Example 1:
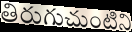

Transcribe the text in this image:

తిరుగుచుంటిని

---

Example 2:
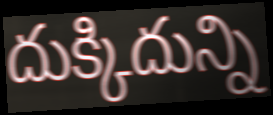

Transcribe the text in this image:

దుక్కిదున్ని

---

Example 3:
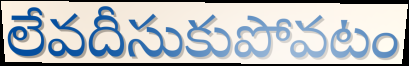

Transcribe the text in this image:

లేవదీసుకుపోవటం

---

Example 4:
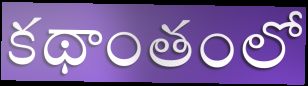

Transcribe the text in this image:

కథాంతంలో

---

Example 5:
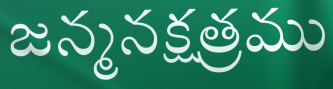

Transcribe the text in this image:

జన్మనక్షత్రము